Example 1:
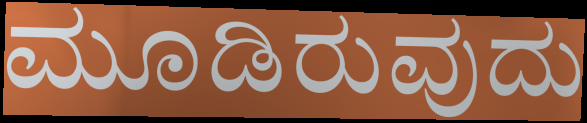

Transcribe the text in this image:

ಮೂಡಿರುವುದು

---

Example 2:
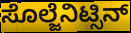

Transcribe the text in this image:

ಸೊಲ್ಜೆನಿಟ್ಸಿನ್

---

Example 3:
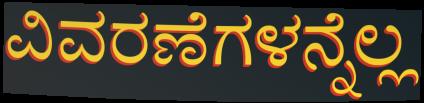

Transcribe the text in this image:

ವಿವರಣೆಗಳನ್ನೆಲ್ಲ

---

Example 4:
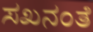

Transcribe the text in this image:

ಸಖನಂತೆ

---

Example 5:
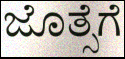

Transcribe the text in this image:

ಜೊತ್ಸೆಗೆ